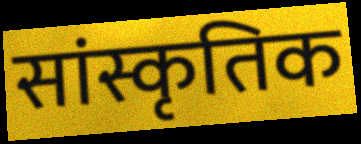
सांस्कृतिक